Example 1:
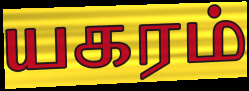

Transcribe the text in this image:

யகரம்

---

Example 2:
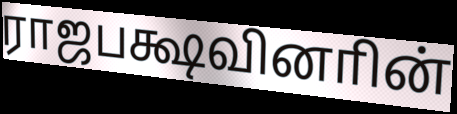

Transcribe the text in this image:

ராஜபக்ஷவினரின்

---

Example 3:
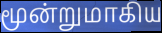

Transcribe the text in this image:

மூன்றுமாகிய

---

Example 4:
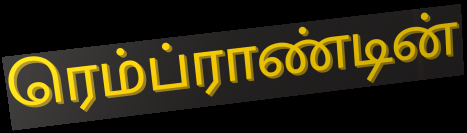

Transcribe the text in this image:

ரெம்ப்ராண்டின்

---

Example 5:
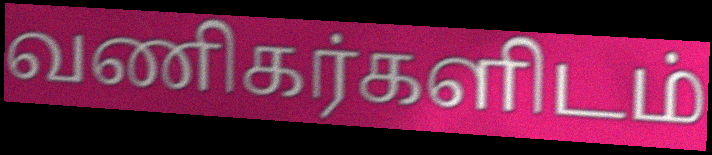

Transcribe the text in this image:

வணிகர்களிடம்